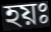
হয়ঃ